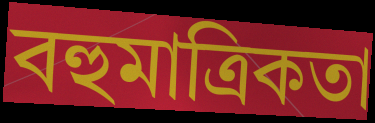
বহুমাত্রিকতা